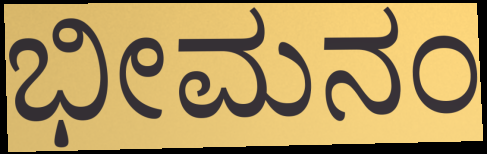
ಭೀಮನಂ